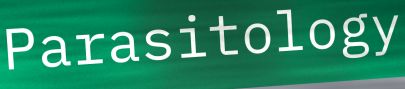
Parasitology